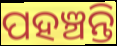
ପହଞ୍ଚନ୍ତି